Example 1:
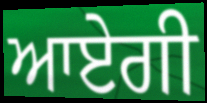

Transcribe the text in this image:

ਆਏਗੀ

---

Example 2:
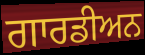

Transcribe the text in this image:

ਗਾਰਡੀਅਨ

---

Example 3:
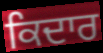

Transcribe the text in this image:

ਕਿਦਾਰ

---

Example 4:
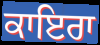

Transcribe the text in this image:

ਕਾਇਰਾ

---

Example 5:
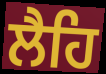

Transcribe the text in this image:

ਲੈਹਿ